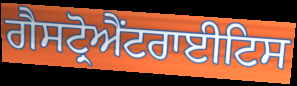
ਗੈਸਟ੍ਰੋਐਂਟਰਾਈਟਿਸ